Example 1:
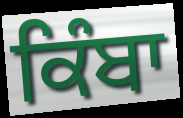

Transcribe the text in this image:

ਕਿੰਬਾ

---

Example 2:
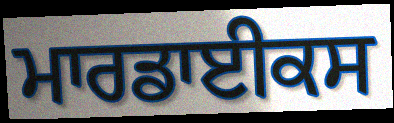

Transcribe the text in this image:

ਮਾਰਡਾਈਕਸ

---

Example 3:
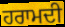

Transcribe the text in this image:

ਹਰਾਮਦੀ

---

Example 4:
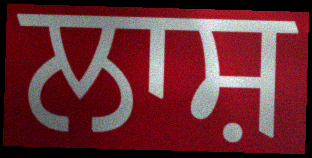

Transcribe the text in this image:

ਲਾਸ਼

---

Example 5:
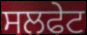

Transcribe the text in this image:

ਸਲਫੇਟ